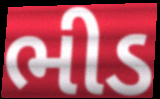
ભીડ